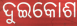
ଦୁଇକୋଶ